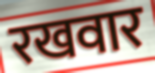
रखवार